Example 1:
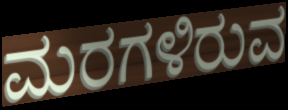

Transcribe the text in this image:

ಮರಗಳಿರುವ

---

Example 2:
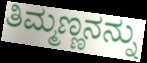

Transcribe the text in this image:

ತಿಮ್ಮಣ್ಣನನ್ನು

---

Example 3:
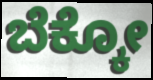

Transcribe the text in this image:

ಬೆಕ್ಕೋ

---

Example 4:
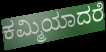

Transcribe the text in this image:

ಕಮ್ಮಿಯಾದರೆ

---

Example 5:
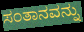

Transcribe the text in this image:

ಸಂತಾನವನ್ನು